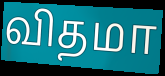
விதமா